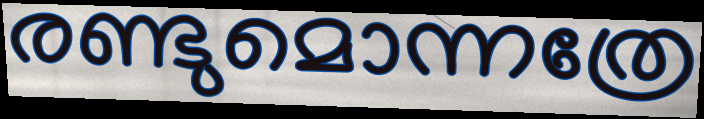
രണ്ടുമൊന്നത്രേ